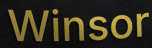
Winsor